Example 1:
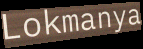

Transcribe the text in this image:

Lokmanya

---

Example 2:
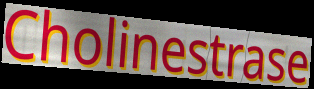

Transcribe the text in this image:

Cholinestrase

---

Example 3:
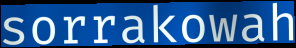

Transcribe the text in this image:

sorrakowah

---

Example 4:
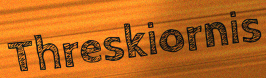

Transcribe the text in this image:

Threskiornis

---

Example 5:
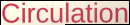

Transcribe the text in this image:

Circulation